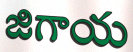
జిగాయ